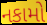
નકામો